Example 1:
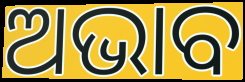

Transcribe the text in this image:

ଅଭାବ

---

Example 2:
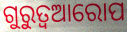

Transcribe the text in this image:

ଗୁରୁତ୍ଵଆରୋପ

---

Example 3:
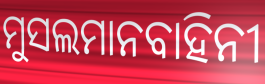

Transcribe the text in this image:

ମୁସଲମାନବାହିନୀ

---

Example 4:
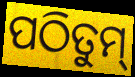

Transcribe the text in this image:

ପଠିତୁମ୍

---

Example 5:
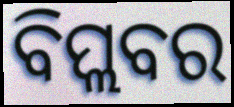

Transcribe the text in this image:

ବିପ୍ଲବର